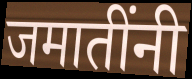
जमातींनी